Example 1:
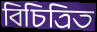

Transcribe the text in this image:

বিচিত্রিত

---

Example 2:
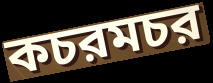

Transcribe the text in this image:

কচরমচর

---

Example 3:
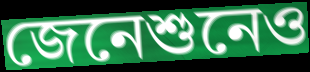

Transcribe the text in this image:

জেনেশুনেও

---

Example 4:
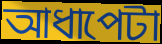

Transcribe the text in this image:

আধাপেটা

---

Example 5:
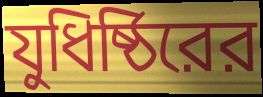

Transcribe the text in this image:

যুধিষ্ঠিরের